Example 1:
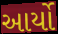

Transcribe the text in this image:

આર્યો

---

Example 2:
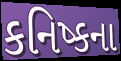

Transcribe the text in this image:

કનિષ્કના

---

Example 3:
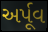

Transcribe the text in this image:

અર્પૂવ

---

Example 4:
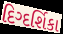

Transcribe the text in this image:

દિગ્દર્શિકા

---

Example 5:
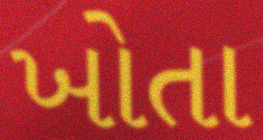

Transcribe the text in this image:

ખોતા